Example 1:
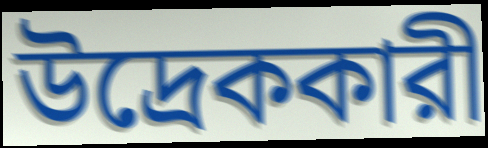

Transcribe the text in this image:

উদ্রেককারী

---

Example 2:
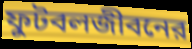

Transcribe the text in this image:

ফুটবলজীবনের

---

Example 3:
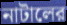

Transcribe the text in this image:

নাটালের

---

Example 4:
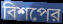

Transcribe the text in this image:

বিশপের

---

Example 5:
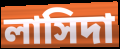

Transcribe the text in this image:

লাসিদা